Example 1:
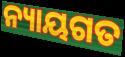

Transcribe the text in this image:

ନ୍ୟାୟଗତ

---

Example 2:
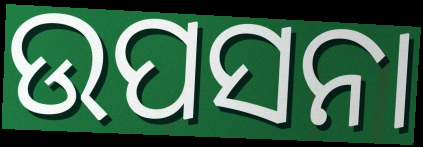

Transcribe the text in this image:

ଉପସନା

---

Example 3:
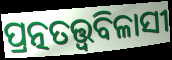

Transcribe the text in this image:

ପ୍ରତ୍ନତତ୍ତ୍ବବିଳାସୀ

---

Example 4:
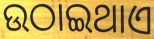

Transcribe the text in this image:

ଉଠାଇଥାଏ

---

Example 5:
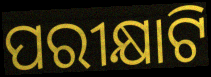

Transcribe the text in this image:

ପରୀକ୍ଷାଟି